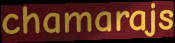
chamarajs